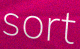
sort